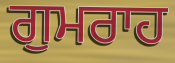
ਗੁਮਰਾਹ